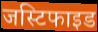
जस्टिफाइड